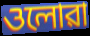
ওলোৱা